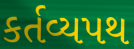
કર્તવ્યપથ